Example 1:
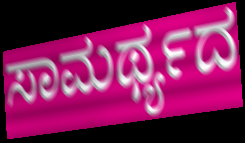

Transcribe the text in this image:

ಸಾಮರ್ಥ್ಯದ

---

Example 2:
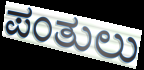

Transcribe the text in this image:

ಪಂತುಲು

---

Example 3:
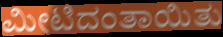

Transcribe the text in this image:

ಮೀಟಿದಂತಾಯಿತು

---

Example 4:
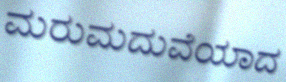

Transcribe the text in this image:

ಮರುಮದುವೆಯಾದ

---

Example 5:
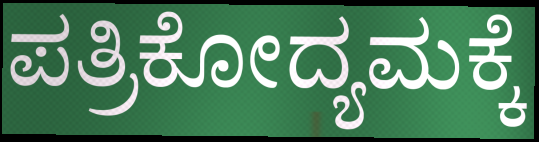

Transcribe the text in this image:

ಪತ್ರಿಕೋದ್ಯಮಕ್ಕೆ